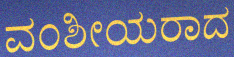
ವಂಶೀಯರಾದ